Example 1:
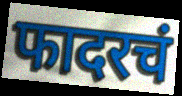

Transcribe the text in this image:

फादरचं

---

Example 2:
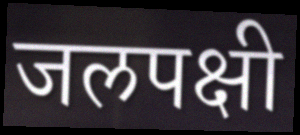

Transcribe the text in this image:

जलपक्षी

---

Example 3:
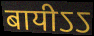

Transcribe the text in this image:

बायीऽऽ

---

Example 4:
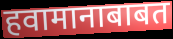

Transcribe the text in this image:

हवामानाबाबत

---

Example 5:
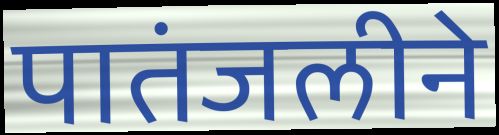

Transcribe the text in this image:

पातंजलीने